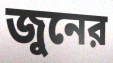
জুনের